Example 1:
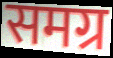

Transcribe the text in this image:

समग्र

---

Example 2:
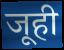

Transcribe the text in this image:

जूही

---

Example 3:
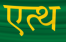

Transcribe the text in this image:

एत्थ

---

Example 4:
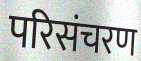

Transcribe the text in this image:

परिसंचरण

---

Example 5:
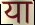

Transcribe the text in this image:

या